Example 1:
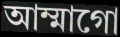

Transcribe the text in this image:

আম্মাগো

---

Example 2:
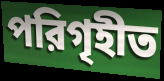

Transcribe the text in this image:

পরিগৃহীত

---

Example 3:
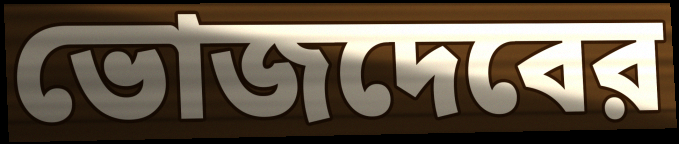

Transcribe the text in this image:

ভোজদেবের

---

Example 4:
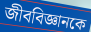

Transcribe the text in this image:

জীববিজ্ঞানকে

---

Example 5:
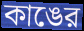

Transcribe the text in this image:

কাঙের